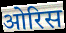
ओरिस